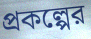
প্রকল্পের